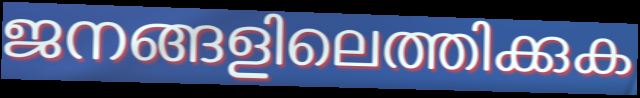
ജനങ്ങളിലെത്തിക്കുക